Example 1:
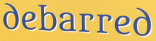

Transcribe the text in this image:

debarred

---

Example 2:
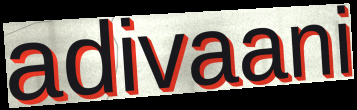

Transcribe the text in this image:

adivaani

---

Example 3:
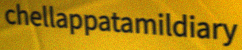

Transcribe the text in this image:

chellappatamildiary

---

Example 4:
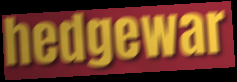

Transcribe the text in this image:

hedgewar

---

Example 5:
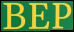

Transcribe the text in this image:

BEP